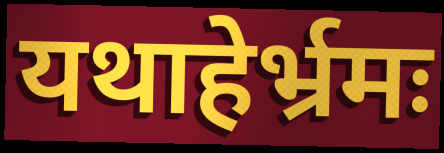
यथाहेर्भ्रमः